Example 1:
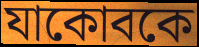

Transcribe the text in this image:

যাকোবকে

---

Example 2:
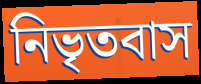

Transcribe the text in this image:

নিভৃতবাস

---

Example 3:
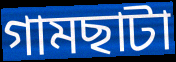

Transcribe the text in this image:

গামছাটা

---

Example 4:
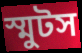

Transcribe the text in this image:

স্মুটস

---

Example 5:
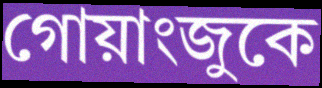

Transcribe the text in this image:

গোয়াংজুকে